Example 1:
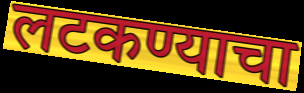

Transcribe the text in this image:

लटकण्याचा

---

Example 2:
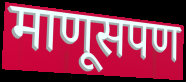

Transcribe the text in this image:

माणूसपण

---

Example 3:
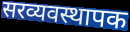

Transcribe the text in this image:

सरव्यवस्थापक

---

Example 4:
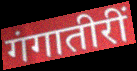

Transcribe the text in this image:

गंगातीरीं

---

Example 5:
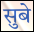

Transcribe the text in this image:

सुबे